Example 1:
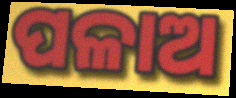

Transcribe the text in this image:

ପଳାଅ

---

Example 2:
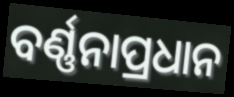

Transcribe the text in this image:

ବର୍ଣ୍ଣନାପ୍ରଧାନ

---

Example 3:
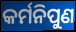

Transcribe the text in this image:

କର୍ମନିପୁଣ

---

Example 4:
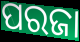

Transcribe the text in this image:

ପରଜା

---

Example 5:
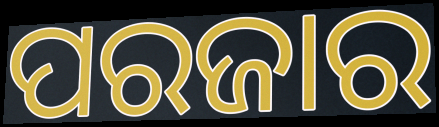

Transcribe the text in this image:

ପରଜାର